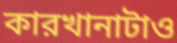
কারখানাটাও